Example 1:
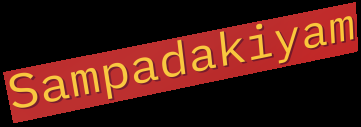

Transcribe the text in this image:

Sampadakiyam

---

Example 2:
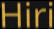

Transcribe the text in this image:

Hiri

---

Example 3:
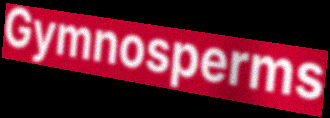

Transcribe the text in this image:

Gymnosperms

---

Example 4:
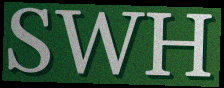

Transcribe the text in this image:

SWH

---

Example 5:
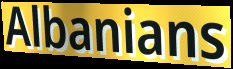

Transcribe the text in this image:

Albanians